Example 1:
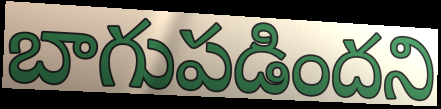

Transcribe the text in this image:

బాగుపడిందని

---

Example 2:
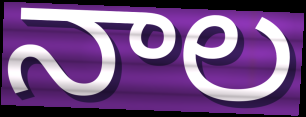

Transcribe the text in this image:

నాల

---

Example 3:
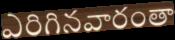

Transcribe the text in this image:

ఎరిగినవారంతా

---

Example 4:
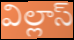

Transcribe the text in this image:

విల్లాస్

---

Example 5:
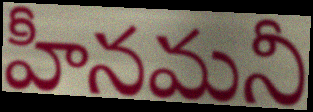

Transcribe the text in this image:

హీనమనీ